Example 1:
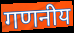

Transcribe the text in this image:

गणनीय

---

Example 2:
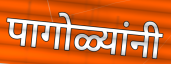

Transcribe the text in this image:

पागोळ्यांनी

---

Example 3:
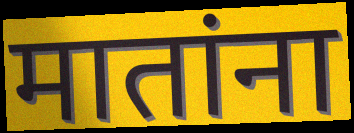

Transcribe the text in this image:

मातांना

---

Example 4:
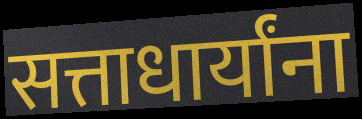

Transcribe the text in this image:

सत्ताधार्यांना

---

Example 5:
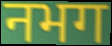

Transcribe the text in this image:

नभग